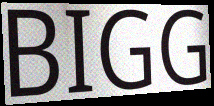
BIGG